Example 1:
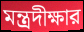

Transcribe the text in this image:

মন্ত্রদীক্ষার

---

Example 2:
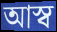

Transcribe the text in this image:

আস্ব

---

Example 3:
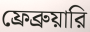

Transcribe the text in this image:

ফ্রেব্রুয়ারি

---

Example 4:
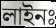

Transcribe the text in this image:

লাইনঃ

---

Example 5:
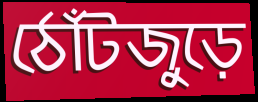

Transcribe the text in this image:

ঠোঁটজুড়ে